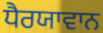
ਧੈਰਯਾਵਾਨ